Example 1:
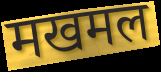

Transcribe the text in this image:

मखमल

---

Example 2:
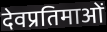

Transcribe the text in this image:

देवप्रतिमाओं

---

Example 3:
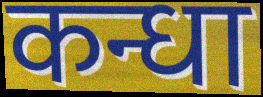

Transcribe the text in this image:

कन्धा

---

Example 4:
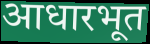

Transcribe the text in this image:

आधारभूत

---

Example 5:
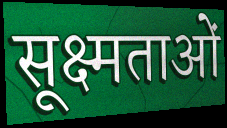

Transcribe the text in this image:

सूक्ष्मताओं